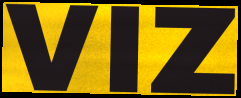
VIZ